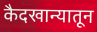
कैदखान्यातून